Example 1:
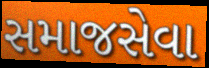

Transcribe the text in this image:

સમાજસેવા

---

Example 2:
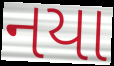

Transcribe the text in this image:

નયા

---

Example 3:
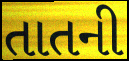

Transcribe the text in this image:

તાતની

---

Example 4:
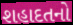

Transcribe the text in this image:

શહાદતનો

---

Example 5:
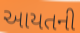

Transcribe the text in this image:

આયતની